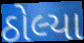
ઠોલ્યા